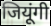
जियूंगी